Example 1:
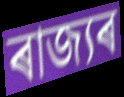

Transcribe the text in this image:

ৰাজ্যৰ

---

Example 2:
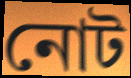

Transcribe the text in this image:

নোট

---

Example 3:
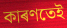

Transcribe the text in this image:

কাৰণতেই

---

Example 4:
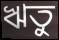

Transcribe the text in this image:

ঋতু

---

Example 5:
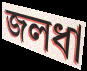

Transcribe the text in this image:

জলধা